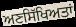
ਅਣਸਿੱਖਿਅਤਾਂ